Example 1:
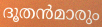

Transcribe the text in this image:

ദൂതൻമാരും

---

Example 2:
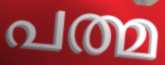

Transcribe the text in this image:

പത്മ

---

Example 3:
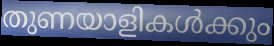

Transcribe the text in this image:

തുണയാളികൾക്കും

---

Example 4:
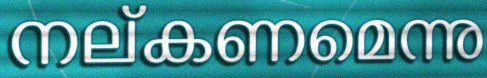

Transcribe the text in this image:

നല്‌കണമെന്നു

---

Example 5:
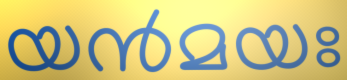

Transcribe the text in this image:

യൻമയഃ